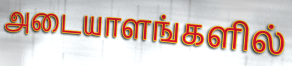
அடையாளங்களில்